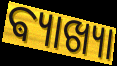
ଵ୍ଯାଖ୍ଯା